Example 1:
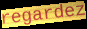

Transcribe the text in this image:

regardez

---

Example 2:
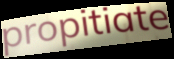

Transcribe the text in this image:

propitiate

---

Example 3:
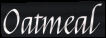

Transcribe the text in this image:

Oatmeal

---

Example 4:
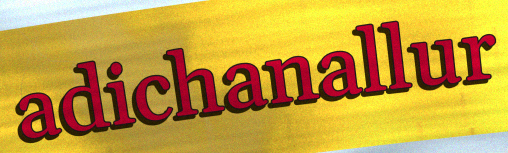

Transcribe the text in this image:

adichanallur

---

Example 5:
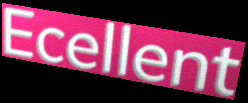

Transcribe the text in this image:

Ecellent